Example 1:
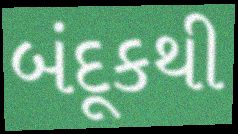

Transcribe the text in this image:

બંદૂકથી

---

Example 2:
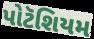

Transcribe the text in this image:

પોટૅશિયમ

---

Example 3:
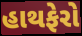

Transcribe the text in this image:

હાથફેરો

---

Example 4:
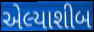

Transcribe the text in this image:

એલ્યાશીબ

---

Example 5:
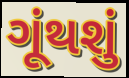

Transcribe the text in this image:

ગૂંથશું